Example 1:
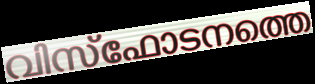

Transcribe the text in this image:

വിസ്ഫോടനത്തെ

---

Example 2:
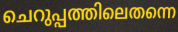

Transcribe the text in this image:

ചെറുപ്പത്തിലെതന്നെ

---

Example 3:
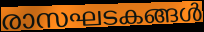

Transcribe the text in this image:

രാസഘടകങ്ങൾ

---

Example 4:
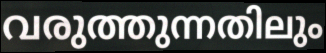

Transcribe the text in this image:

വരുത്തുന്നതിലും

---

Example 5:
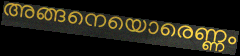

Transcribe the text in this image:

അങ്ങനെയൊരെണ്ണം